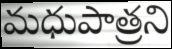
మధుపాత్రని